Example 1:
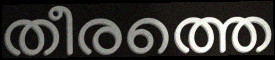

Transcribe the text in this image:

തീരത്തെ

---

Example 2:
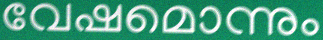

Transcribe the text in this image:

വേഷമൊന്നും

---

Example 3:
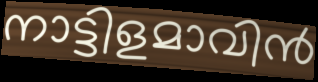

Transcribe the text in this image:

നാട്ടിളമാവിൻ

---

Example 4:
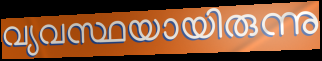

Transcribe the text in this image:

വ്യവസ്ഥയായിരുന്നു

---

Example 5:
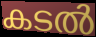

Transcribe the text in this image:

കടൽ